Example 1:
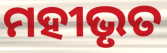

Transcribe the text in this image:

ମହୀଭୃତ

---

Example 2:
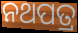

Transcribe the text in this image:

ନଥପତ୍ର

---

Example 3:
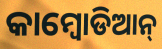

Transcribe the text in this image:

କାମ୍ବୋଡିଆନ୍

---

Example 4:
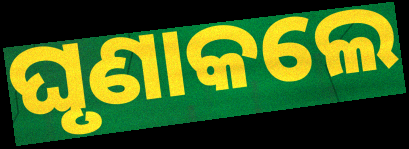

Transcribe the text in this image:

ଘୃଣାକଲେ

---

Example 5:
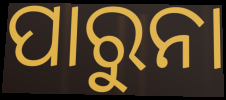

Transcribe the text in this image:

ପାରୁନା